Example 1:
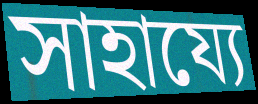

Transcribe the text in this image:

সাহায্যে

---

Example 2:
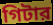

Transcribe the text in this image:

গিটার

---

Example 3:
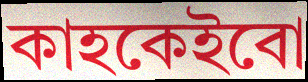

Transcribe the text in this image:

কাহকেইবো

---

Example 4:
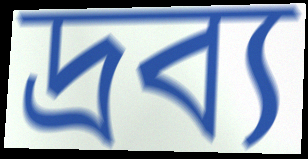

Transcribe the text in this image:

দ্রব্য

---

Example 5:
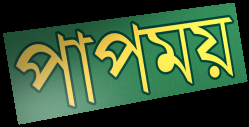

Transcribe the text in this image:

পাপময়